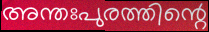
അന്തഃപുരത്തിന്റെ